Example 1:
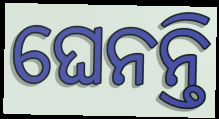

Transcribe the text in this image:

ଘେନନ୍ତି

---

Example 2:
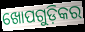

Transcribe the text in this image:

ଖୋପଗୁଡ଼ିକର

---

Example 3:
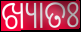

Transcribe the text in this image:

ଖ୍ୟାତଃ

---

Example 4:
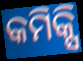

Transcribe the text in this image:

କମିକ୍ସି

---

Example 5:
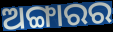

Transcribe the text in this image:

ଅଙ୍ଗାରର